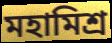
মহামিশ্র